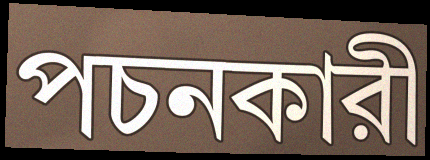
পচনকারী